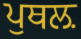
ਪੁਥਲ਼